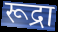
रूद्रा